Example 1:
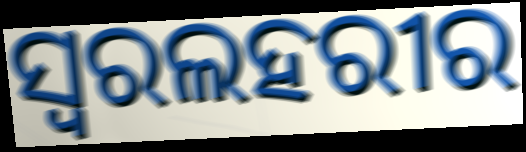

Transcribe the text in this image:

ସ୍ୱରଲହରୀର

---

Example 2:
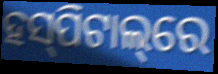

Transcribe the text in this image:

ହସ୍‌ପିଟାଲ୍‌ରେ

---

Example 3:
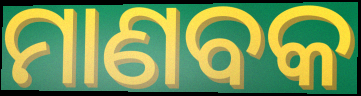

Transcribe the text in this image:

ମାଣବକ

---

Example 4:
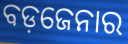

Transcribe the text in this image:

ବଡ଼ଜେନାର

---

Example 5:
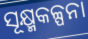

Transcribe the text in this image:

ସୂକ୍ଷ୍ମକଳ୍ପନା